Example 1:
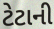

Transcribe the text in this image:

ટેટાની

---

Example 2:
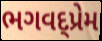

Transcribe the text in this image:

ભગવદ્પ્રેમ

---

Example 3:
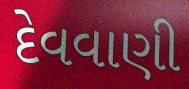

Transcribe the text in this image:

દેવવાણી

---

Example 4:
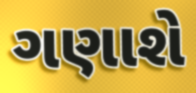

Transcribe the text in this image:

ગણાશે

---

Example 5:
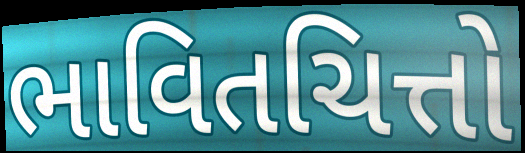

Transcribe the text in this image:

ભાવિતચિત્તો